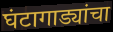
घंटागाड्यांचा